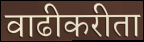
वाढीकरीता